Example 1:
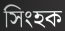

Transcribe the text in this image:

সিংহক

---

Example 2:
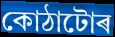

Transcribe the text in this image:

কোঠাটোৰ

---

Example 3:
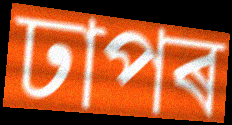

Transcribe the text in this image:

ঢাপৰ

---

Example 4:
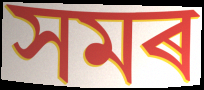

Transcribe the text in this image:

সমৰ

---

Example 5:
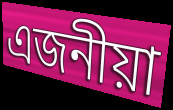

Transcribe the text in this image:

এজনীয়া